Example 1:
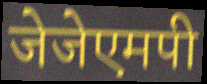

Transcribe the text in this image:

जेजेएमपी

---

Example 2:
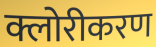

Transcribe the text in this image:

क्लोरीकरण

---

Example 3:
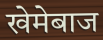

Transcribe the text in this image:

खेमेबाज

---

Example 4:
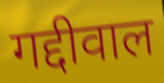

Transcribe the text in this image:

गद्दीवाल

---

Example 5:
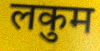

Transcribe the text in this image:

लकुम